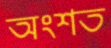
অংশত